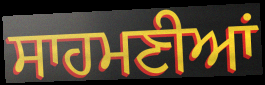
ਸਾਹਮਣੀਆਂ